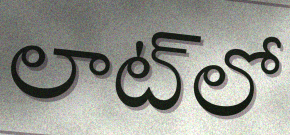
లాట్‌లో